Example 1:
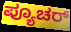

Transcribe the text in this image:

ಪ್ಯೂಚರ್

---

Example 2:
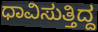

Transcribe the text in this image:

ಧಾವಿಸುತ್ತಿದ್ದ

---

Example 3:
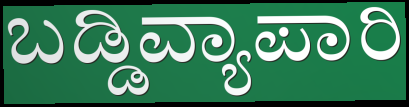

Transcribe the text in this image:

ಬಡ್ಡಿವ್ಯಾಪಾರಿ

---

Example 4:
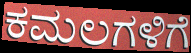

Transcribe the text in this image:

ಕಮಲಗಳಿಗೆ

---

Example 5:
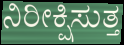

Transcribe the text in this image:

ನಿರೀಕ್ಷಿಸುತ್ತ